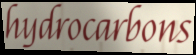
hydrocarbons